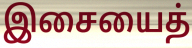
இசையைத்